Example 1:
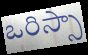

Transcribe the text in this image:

ఒరిస్సా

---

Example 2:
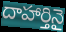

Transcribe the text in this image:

దాహార్తినై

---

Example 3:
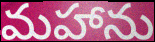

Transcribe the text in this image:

మహాను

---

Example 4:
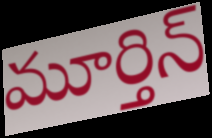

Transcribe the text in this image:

మూర్తిన్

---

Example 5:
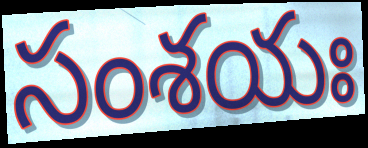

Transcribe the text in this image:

సంశయః